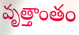
వృత్తాంతం